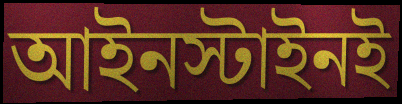
আইনস্টাইনই